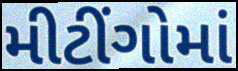
મીટીંગોમાં